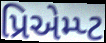
પ્રિએમ્પ્ટ